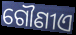
ଗୌଣୀଏ